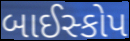
બાઈસ્કોપ